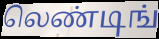
லெண்டிங்